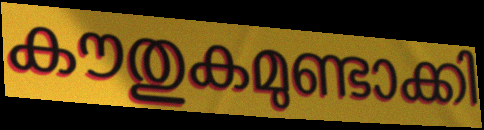
കൗതുകമുണ്ടാക്കി